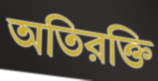
অতিরক্তি